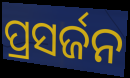
ପ୍ରସର୍ଜନ